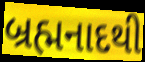
બ્રહ્મનાદથી